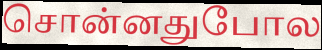
சொன்னதுபோல